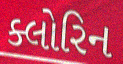
ક્લોરિન